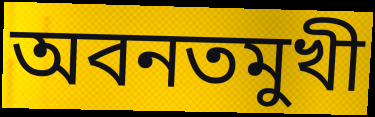
অবনতমুখী